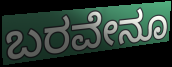
ಬರವೇನೂ